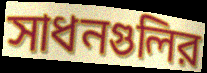
সাধনগুলির